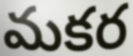
మకర